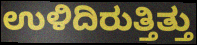
ಉಳಿದಿರುತ್ತಿತ್ತು